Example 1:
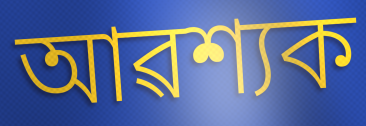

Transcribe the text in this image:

আৱশ্যক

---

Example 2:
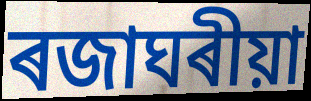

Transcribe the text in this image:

ৰজাঘৰীয়া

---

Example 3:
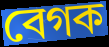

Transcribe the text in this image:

বেগক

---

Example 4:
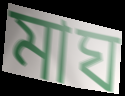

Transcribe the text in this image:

মাঘ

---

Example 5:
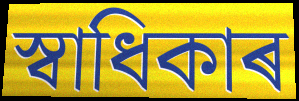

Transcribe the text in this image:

স্বাধিকাৰ